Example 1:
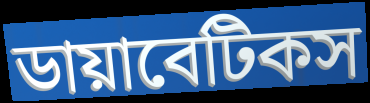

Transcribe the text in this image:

ডায়াবেটিকস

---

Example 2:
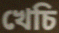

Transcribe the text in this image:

খেচি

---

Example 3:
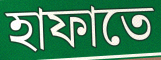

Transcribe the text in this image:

হাফাতে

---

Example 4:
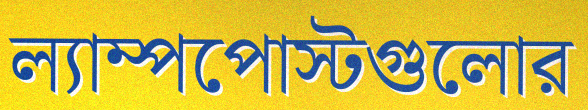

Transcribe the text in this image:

ল্যাম্পপোস্টগুলোর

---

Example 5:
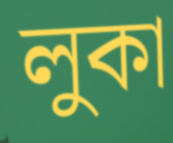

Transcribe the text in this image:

লুকা